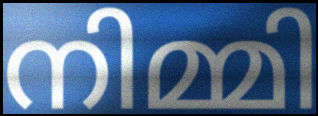
നിമ്മി